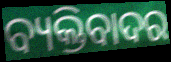
ବ୍ୟକ୍ତିବାଦର